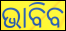
ଭାବିବ